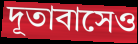
দূতাবাসেও